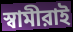
স্বামীরাই